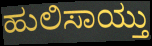
ಹುಲಿಸಾಯ್ತು